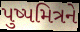
પુષ્પમિત્રને